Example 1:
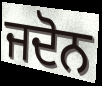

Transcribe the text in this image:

ਜਦੋਨ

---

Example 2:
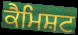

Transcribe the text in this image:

ਕੈਮਿਸ਼ਟ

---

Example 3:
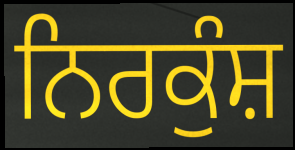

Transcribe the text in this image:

ਨਿਰਕੁੰਸ਼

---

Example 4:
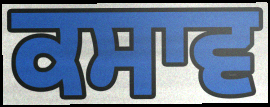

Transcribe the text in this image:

ਕਸਾਵ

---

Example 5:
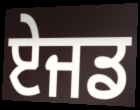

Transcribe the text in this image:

ਏਜਡ